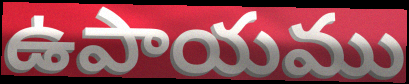
ఉపాయము